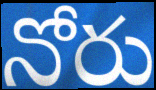
నోరు